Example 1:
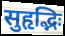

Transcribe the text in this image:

सुहृद्भिः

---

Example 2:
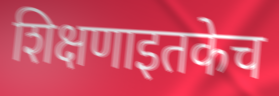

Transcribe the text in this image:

शिक्षणाइतकेच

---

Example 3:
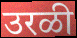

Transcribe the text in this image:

उरळी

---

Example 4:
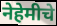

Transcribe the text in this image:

नेहेमीचे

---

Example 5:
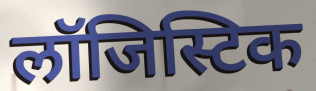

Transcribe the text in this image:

लॉजिस्टिक